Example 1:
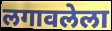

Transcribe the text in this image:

लगावलेला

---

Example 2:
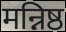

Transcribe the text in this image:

मन्निष्ठ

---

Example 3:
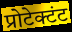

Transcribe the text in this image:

प्रोटेक्टंट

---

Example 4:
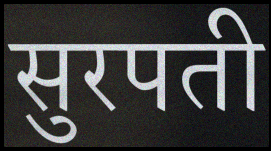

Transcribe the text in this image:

सुरपती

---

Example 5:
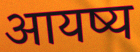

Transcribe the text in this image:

आयष्य